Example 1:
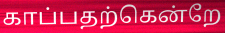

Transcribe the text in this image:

காப்பதற்கென்றே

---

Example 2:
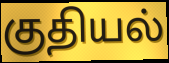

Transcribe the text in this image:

குதியல்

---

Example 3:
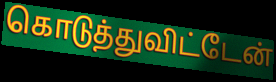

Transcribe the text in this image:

கொடுத்துவிட்டேன்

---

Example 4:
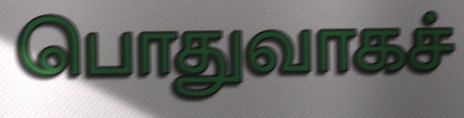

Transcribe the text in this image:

பொதுவாகச்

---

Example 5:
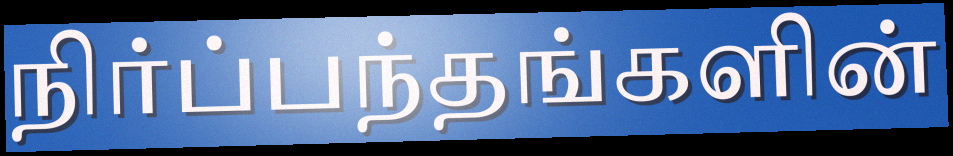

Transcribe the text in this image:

நிர்ப்பந்தங்களின்